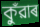
কুঁৱাৰ